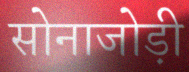
सोनाजोड़ी